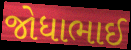
જોધાભાઈ